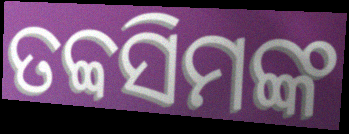
ତବ୍ବସିମଙ୍କ